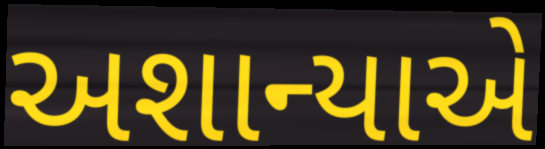
અશાન્યાએ